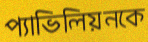
প্যাভিলিয়নকে